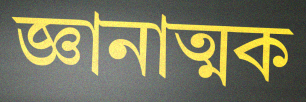
জ্ঞানাত্মক